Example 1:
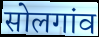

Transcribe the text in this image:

सोलगांव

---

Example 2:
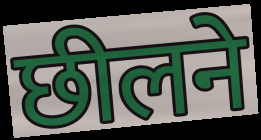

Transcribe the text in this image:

छीलने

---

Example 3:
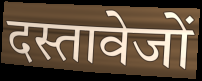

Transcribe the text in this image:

दस्तावेजों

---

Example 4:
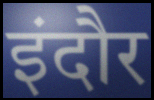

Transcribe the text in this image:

इंदौर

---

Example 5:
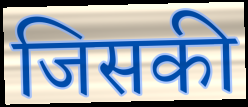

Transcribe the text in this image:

जिसकी